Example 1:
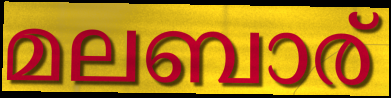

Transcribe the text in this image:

മലബാര്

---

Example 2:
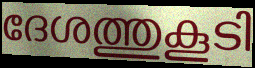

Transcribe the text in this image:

ദേശത്തുകൂടി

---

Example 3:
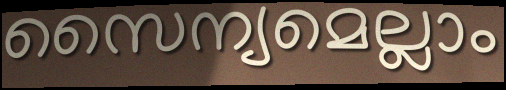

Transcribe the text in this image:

സൈന്യമെല്ലാം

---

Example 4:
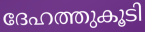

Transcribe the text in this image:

ദേഹത്തുകൂടി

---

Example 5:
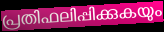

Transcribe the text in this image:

പ്രതിഫലിപ്പിക്കുകയും